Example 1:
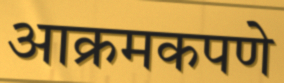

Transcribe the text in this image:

आक्रमकपणे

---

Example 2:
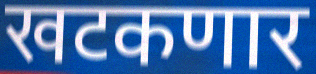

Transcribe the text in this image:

खटकणार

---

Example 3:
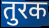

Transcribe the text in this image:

तुरक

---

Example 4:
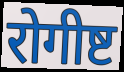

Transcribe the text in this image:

रोगीष्ट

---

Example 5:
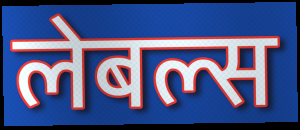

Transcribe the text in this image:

लेबल्स